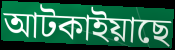
আটকাইয়াছে